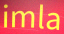
imla